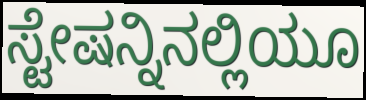
ಸ್ಟೇಷನ್ನಿನಲ್ಲಿಯೂ